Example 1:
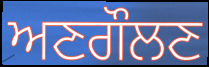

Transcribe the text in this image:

ਅਣਗੌਲਣ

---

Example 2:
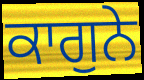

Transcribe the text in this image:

ਕਾਗੁਨੇ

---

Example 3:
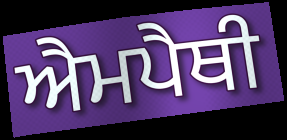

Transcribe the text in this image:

ਐਮਪੈਥੀ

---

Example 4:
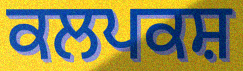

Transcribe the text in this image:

ਕਲਪਕਸ਼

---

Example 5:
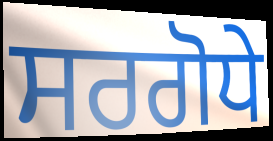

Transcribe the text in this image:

ਸਰਗੋਧੇ